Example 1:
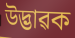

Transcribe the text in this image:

উদ্ভাৱক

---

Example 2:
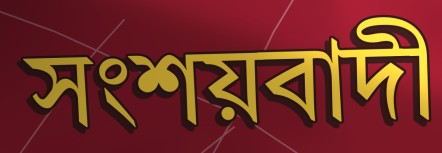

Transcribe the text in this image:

সংশয়বাদী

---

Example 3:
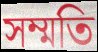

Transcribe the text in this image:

সম্মতি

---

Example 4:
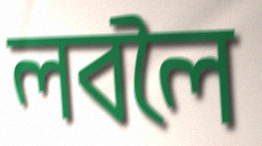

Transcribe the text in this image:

লবলৈ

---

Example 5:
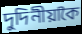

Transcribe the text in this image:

দুদিনীয়াকৈ